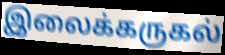
இலைக்கருகல்